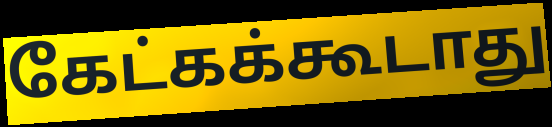
கேட்கக்கூடாது